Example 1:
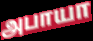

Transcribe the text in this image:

அபாயா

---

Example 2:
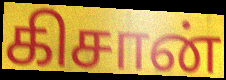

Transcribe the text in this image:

கிசான்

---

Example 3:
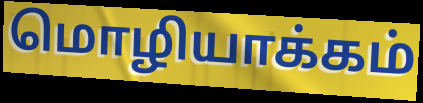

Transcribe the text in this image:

மொழியாக்கம்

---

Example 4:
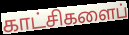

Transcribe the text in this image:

காட்சிகளைப்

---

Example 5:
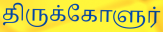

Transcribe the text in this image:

திருக்கோளுர்